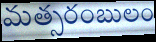
మత్సరంబులం